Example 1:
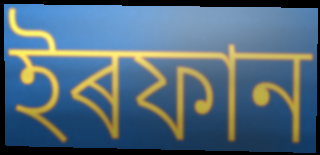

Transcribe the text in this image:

ইৰফান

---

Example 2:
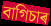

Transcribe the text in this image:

বাগিচাৰ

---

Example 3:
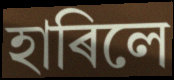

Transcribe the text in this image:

হাৰিলে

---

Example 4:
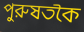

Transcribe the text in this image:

পুৰুষতকৈ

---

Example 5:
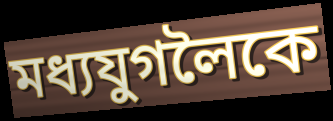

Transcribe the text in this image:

মধ্যযুগলৈকে